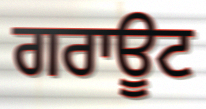
ਗਰਾਊਟ